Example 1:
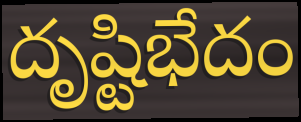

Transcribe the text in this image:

దృష్టిభేదం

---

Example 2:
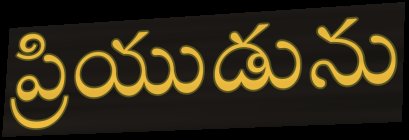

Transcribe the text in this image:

ప్రియుడును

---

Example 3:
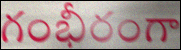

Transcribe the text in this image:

గంభీరంగా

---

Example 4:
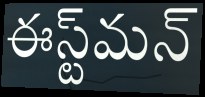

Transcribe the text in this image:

ఈస్ట్‌మన్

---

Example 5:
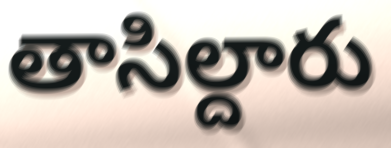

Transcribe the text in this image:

తాసిల్దారు